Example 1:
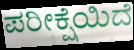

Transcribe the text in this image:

ಪರೀಕ್ಷೆಯಿದೆ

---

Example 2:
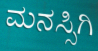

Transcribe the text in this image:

ಮನಸ್ಸಿಗಿ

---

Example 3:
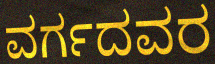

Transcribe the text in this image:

ವರ್ಗದವರ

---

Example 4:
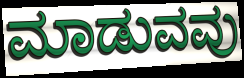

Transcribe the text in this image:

ಮಾಡುವವು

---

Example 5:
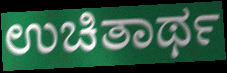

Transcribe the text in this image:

ಉಚಿತಾರ್ಥ